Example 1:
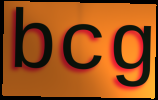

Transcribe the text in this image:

bcg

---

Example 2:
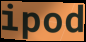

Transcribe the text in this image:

ipod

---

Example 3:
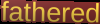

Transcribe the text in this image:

fathered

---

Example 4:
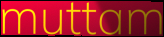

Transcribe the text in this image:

muttam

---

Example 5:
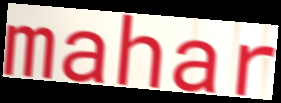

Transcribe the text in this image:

mahar